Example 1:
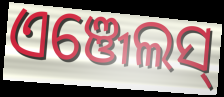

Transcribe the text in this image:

ଏଞ୍ଜେଲସ୍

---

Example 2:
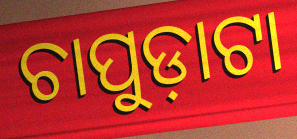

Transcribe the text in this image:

ଚାପୁଡ଼ାଟା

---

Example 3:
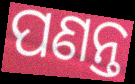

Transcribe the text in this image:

ପଣନ୍ତ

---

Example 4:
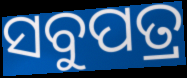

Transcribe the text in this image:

ସବୁପତ୍ର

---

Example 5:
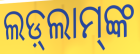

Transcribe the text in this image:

ଲଡ଼୍‍ଲାମ୍‍ଙ୍କ